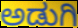
ಅಡುಗಿ